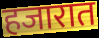
हजारात